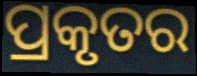
ପ୍ରକୃତର